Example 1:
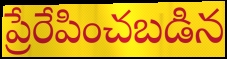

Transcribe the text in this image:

ప్రేరేపించబడిన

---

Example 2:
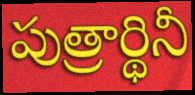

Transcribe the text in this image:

పుత్రార్థినీ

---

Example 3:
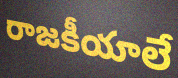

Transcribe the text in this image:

రాజకీయాలే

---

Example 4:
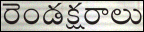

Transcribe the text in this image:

రెండక్షరాలు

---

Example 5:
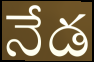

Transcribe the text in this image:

నేడ